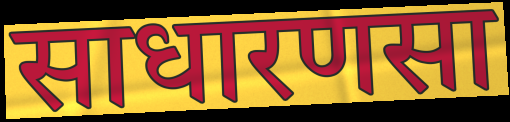
साधारणसा